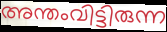
അന്തംവിട്ടിരുന്ന